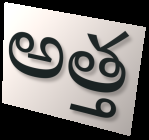
అత్త